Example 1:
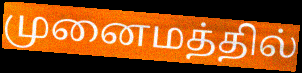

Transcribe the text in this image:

முனைமத்தில்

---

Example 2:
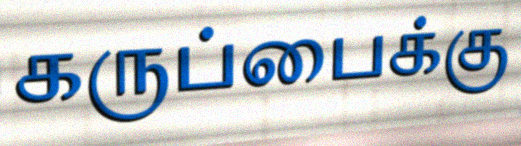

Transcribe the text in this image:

கருப்பைக்கு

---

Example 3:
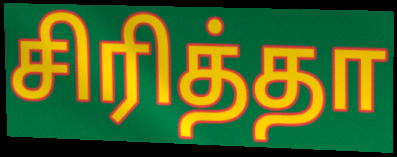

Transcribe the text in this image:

சிரித்தா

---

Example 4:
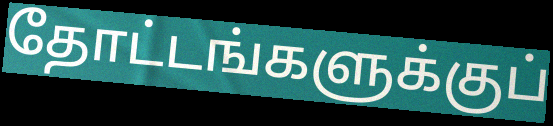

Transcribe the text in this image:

தோட்டங்களுக்குப்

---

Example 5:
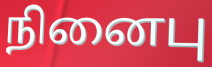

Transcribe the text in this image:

நினைபு